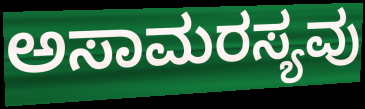
ಅಸಾಮರಸ್ಯವು